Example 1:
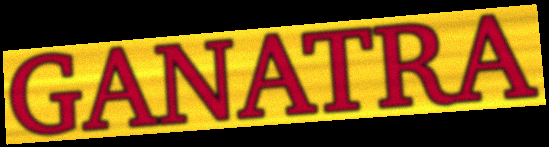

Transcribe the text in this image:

GANATRA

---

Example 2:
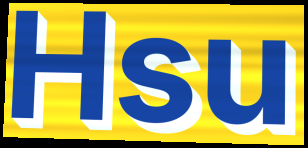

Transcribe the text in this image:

Hsu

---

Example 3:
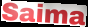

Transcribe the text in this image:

Saima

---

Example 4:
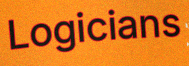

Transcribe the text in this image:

Logicians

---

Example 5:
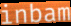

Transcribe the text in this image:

inbam